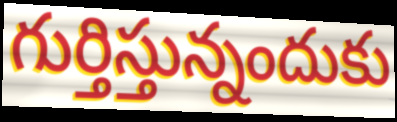
గుర్తిస్తున్నందుకు